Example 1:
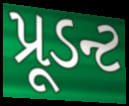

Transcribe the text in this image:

પ્રૂડન્ટ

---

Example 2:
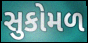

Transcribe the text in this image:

સુકોમળ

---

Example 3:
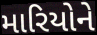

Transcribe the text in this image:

મારિયોને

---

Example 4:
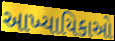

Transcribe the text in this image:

આખ્યાયિકાઓ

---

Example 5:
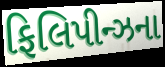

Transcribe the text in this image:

ફિલિપીન્ઝના